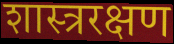
शास्त्ररक्षण